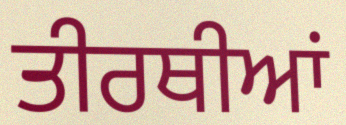
ਤੀਰਥੀਆਂ